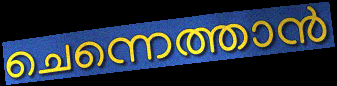
ചെന്നെത്താൻ